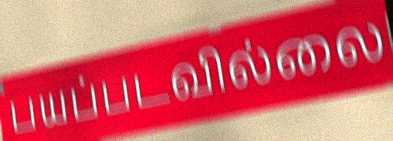
பயப்படவில்லை